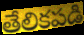
తేలికపడి